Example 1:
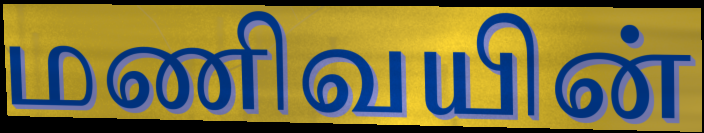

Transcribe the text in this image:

மணிவயின்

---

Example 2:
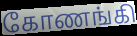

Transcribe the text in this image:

கோணங்கி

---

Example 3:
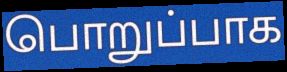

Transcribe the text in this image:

பொறுப்பாக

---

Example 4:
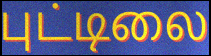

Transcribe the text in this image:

புட்டிலை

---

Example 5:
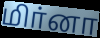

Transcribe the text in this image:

மிர்னா